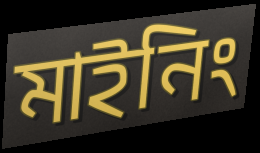
মাইনিং